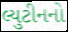
લ્યુટીનનો